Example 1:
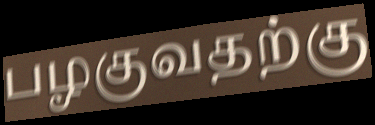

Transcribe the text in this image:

பழகுவதற்கு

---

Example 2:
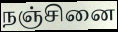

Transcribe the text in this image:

நஞ்சினை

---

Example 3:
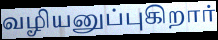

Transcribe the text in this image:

வழியனுப்புகிறார்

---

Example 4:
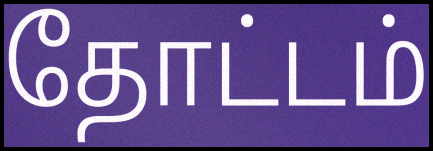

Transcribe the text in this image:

தோட்டம்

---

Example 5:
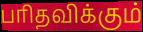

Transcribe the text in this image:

பரிதவிக்கும்